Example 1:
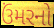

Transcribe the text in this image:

ઉંમરનો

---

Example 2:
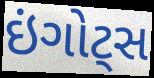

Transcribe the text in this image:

ઇંગોટ્સ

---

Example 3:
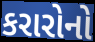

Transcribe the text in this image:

કરારોનો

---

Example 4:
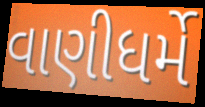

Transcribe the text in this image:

વાણીધર્મે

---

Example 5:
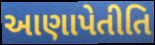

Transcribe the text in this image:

આણાપેતીતિ